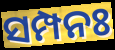
ସମ୍ପନଃ